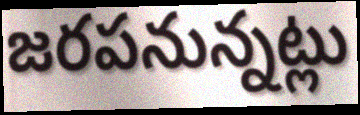
జరపనున్నట్లు